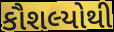
કૌશલ્યોથી